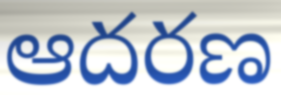
ఆదరణ